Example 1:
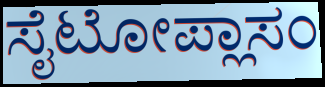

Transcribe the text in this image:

ಸೈಟೋಪ್ಲಾಸಂ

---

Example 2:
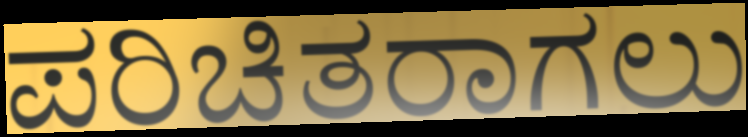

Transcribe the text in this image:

ಪರಿಚಿತರಾಗಲು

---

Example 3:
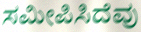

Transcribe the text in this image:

ಸಮೀಪಿಸಿದೆವು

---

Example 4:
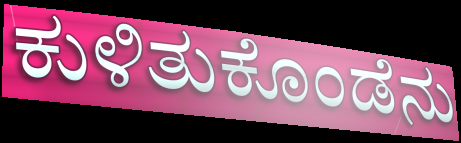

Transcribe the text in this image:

ಕುಳಿತುಕೊಂಡೆನು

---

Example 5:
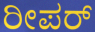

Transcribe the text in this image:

ರೀಪರ್